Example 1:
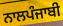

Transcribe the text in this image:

ਨਾਲਪੰਜਾਬੀ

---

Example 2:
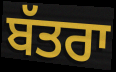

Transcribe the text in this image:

ਬੱਤਰਾ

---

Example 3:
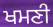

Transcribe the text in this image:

ਖਮਣੀ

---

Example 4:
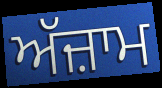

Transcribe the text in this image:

ਅੱਜ਼ਾਮ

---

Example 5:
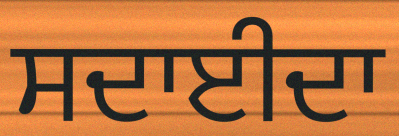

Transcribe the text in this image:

ਸਦਾਈਦਾ